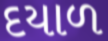
દયાળ